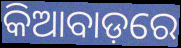
କିଆବାଡ଼ରେ